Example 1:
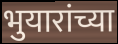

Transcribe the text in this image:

भुयारांच्या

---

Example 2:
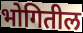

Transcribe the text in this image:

भोगितील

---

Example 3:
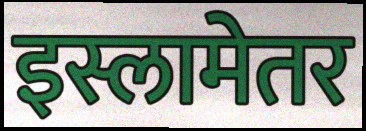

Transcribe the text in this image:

इस्लामेतर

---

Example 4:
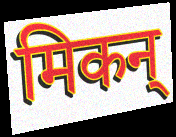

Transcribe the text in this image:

मिकन्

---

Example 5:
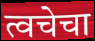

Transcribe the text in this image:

त्वचेचा